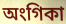
অংগিকা